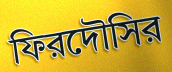
ফিরদৌসির